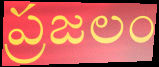
ప్రజలం